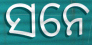
ସନେ